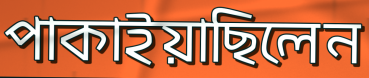
পাকাইয়াছিলেন